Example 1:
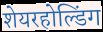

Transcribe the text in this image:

शेयरहोल्डिंग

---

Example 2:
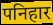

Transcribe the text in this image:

पनिहार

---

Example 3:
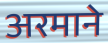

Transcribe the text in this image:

अरमाने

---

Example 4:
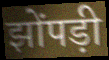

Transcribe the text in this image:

झोंपड़ी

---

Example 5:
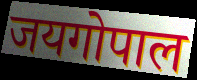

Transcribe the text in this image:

जयगोपाल